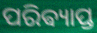
ପରିଵ୍ୟାପ୍ତ